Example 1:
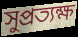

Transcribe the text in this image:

সুপ্রত্যক্ষ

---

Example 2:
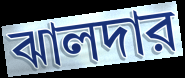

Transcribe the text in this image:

ঝালদার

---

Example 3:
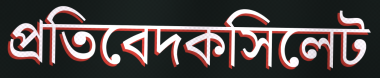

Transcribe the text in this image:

প্রতিবেদকসিলেট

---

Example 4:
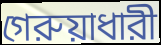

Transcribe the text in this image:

গেরুয়াধারী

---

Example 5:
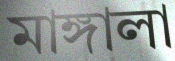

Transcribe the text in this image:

মাঙ্গালা